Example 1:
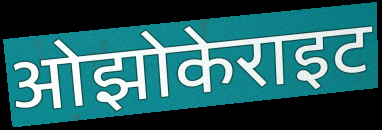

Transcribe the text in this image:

ओझोकेराइट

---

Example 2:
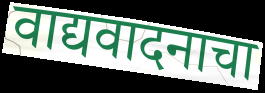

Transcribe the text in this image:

वाद्यवादनाचा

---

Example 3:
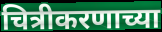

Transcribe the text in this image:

चित्रीकरणाच्या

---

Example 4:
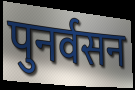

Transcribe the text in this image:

पुनर्वसन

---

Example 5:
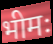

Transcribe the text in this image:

भीमः